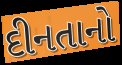
દીનતાનો